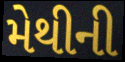
મેથીની